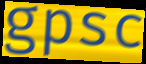
gpsc